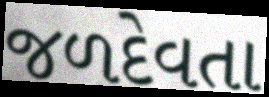
જળદેવતા